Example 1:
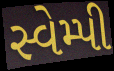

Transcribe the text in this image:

સ્વેમ્પી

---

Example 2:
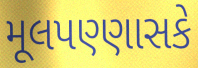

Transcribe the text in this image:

મૂલપણ્ણાસકે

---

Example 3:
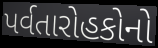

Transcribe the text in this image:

પર્વતારોહકોનો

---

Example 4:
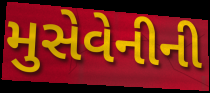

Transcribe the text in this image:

મુસેવેનીની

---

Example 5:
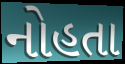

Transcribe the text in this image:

નોહતા